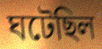
ঘটেছিল